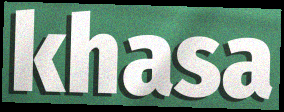
khasa